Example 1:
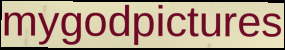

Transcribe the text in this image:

mygodpictures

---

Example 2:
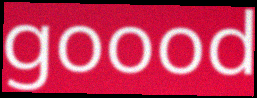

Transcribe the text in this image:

goood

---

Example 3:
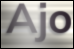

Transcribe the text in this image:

Ajo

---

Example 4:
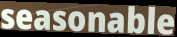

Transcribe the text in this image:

seasonable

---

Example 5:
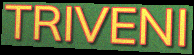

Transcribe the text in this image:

TRIVENI